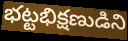
భట్టభిక్షణుడిని